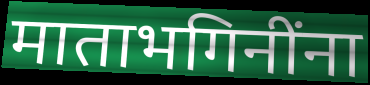
माताभगिनींना